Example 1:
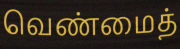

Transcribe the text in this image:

வெண்மைத்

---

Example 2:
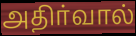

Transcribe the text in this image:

அதிர்வால்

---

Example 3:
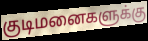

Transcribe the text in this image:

குடிமனைகளுக்கு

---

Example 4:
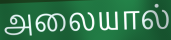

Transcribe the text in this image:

அலையால்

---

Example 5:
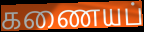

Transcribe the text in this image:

கணையப்